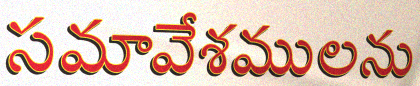
సమావేశములను